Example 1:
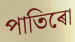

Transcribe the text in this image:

পাতিৰো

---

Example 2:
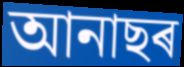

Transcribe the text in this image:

আনাছৰ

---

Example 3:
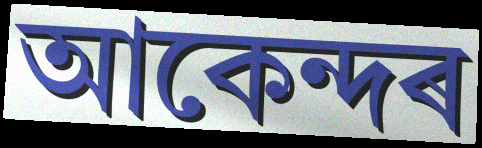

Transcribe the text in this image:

আকেন্দৰ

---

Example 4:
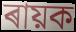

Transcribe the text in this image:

ৰায়ক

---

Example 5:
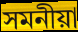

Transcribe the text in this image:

সমনীয়া